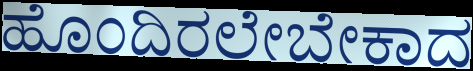
ಹೊಂದಿರಲೇಬೇಕಾದ